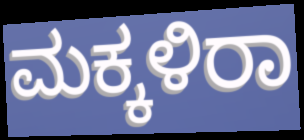
ಮಕ್ಕಳಿರಾ